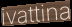
ivattina